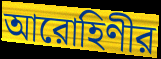
আরোহিণীর